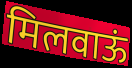
मिलवाऊं